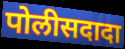
पोलीसदादा